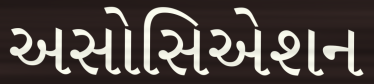
અસોસિએશન